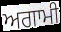
ਅਗਾਮੀ